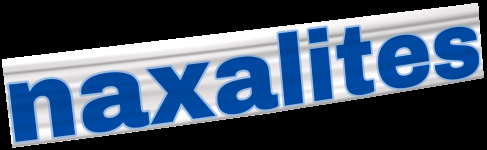
naxalites